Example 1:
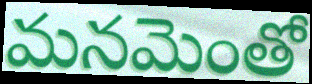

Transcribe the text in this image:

మనమెంతో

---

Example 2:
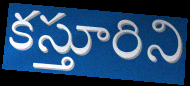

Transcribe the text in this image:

కస్తూరిని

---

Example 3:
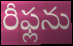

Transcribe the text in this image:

రీఫ్లను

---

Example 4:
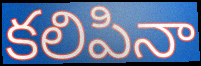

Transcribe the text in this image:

కలిపినా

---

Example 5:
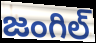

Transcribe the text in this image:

జంగిల్